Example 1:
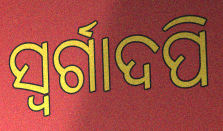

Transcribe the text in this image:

ସ୍ୱର୍ଗାଦପି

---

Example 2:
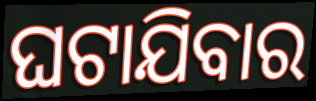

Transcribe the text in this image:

ଘଟାଯିବାର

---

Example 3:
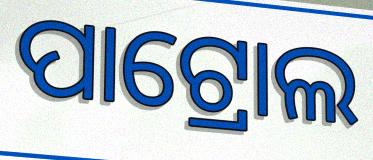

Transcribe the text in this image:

ପାଟ୍ରୋଲ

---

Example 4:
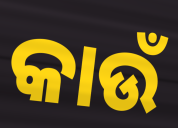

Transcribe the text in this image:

କାଉଁ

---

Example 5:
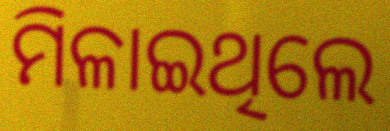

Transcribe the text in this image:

ମିଳାଇଥିଲେ